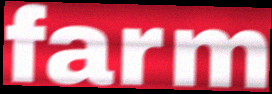
farm